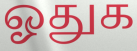
ஓதுக